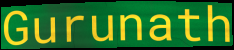
Gurunath